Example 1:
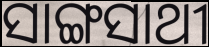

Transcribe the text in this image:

ସାଙ୍ଗସାଥୀ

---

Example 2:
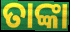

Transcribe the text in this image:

ତାଙ୍କା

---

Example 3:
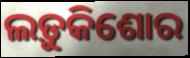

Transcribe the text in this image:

ଲଡ଼ୁକିଶୋର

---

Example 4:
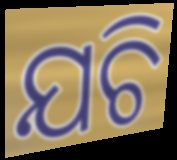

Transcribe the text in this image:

ଯଚି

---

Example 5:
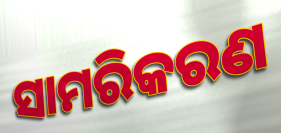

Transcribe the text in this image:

ସାମରିକରଣ